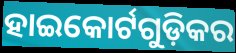
ହାଇକୋର୍ଟଗୁଡ଼ିକର